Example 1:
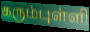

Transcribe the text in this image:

கரும்புள்ளி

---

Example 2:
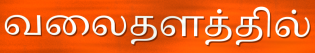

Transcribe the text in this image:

வலைதளத்தில்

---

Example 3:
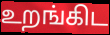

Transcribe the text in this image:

உறங்கிட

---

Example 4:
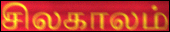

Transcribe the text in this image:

சிலகாலம்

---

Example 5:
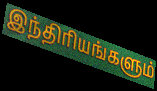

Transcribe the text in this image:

இந்திரியங்களும்